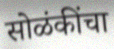
सोळंकींचा